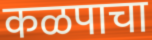
कळपाचा